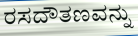
ರಸದೌತಣವನ್ನು